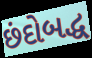
છંદોબદ્ધ